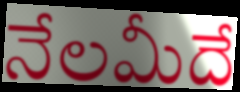
నేలమీదే